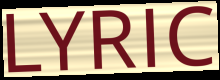
LYRIC